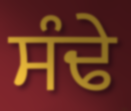
ਸੰਢੇ